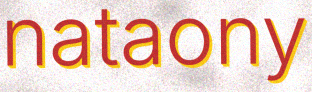
nataony